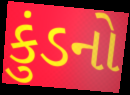
કુંડનો